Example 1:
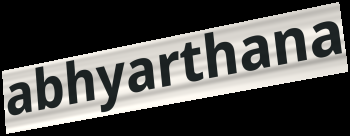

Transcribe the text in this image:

abhyarthana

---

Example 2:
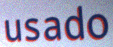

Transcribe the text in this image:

usado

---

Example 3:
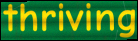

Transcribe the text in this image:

thriving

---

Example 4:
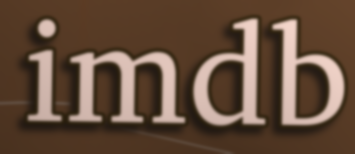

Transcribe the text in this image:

imdb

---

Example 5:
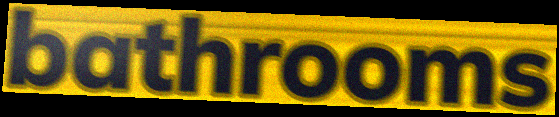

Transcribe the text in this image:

bathrooms